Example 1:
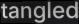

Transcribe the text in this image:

tangled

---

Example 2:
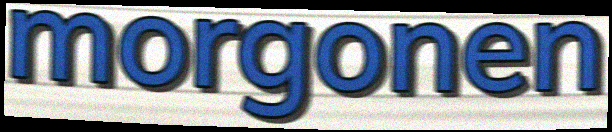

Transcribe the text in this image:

morgonen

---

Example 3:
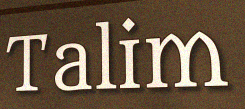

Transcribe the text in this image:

Talim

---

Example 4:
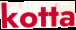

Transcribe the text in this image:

kotta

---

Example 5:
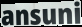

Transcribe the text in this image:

ansuni